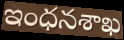
ఇంధనశాఖ